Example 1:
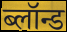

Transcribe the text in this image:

ब्लॉन्ड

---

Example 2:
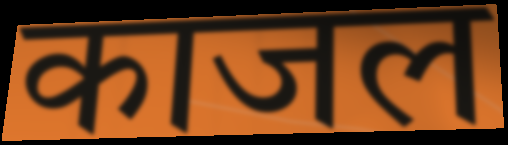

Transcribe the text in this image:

काजल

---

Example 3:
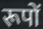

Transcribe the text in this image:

रूपों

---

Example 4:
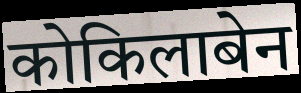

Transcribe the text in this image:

कोकिलाबेन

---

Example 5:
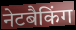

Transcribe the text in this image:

नेटबैकिंग